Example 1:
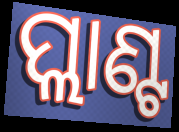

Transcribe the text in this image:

ପ୍ଲାଣ୍ଟ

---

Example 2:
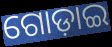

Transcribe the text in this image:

ଗୋଡ଼ାଇ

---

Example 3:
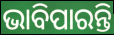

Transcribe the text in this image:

ଭାବିପାରନ୍ତି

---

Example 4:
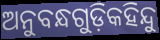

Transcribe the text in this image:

ଅନୁବନ୍ଧଗୁଡ଼ିକହିନ୍ଦୁ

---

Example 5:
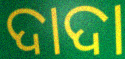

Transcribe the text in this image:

ଦାଦା